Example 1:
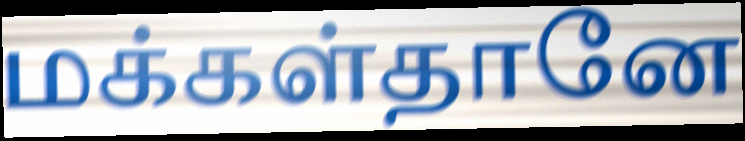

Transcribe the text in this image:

மக்கள்தானே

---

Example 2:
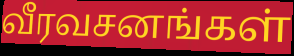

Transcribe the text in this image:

வீரவசனங்கள்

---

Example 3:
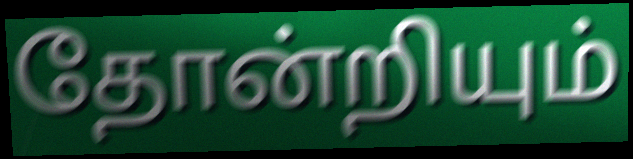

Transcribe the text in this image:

தோன்றியும்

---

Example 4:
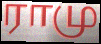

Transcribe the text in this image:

ராமு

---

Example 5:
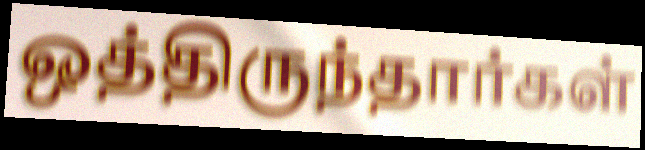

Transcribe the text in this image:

ஒத்திருந்தார்கள்